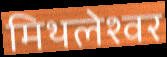
मिथलेश्वर